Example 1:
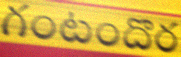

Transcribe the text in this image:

గంటందొర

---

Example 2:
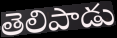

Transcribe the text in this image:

తెలిపాడు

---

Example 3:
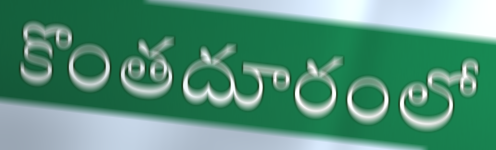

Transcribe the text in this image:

కొంతదూరంలో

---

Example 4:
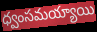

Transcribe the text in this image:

ధ్వంసమయ్యాయి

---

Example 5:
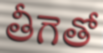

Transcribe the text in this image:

తీగెతో